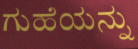
ಗುಹೆಯನ್ನು